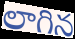
లాగిన